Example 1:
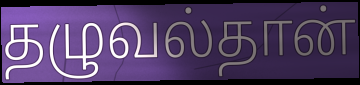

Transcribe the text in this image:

தழுவல்தான்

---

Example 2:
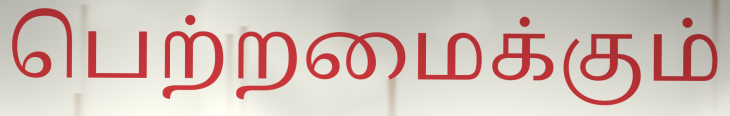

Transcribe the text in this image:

பெற்றமைக்கும்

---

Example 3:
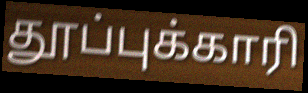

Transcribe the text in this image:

தூப்புக்காரி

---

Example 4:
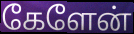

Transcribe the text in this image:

கேளேன்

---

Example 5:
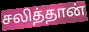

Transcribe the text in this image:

சலித்தான்